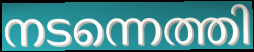
നടന്നെത്തി